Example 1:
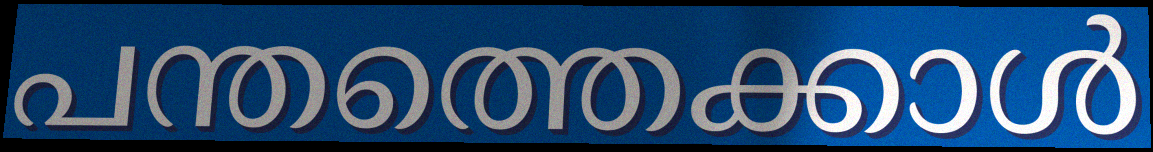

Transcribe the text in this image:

പന്തത്തെക്കാൾ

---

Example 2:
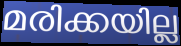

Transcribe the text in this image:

മരിക്കയില്ല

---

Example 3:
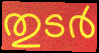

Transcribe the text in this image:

തുടർ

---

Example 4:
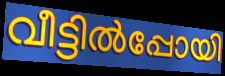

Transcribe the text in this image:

വീട്ടിൽപ്പോയി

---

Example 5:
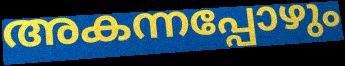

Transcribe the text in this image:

അകന്നപ്പോഴും